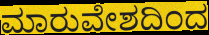
ಮಾರುವೇಶದಿಂದ